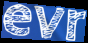
evr